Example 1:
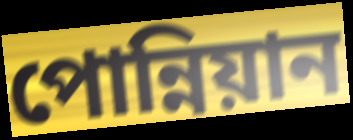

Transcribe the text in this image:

পোন্নিয়ান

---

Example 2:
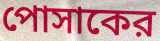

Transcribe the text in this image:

পোসাকের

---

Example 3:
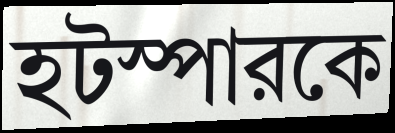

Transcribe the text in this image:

হটস্পারকে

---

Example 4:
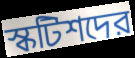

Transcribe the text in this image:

স্কটিশদের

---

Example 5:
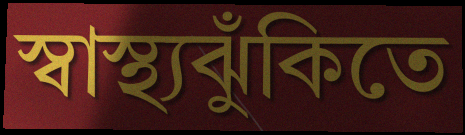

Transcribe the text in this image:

স্বাস্থ্যঝুঁকিতে